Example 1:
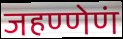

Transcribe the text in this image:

जहण्णेणं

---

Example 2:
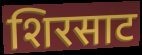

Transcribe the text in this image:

शिरसाट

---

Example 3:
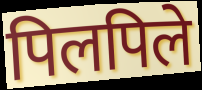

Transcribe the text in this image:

पिलपिले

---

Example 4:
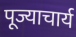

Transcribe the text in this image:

पूज्याचार्य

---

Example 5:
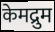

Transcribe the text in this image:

केमद्रुम